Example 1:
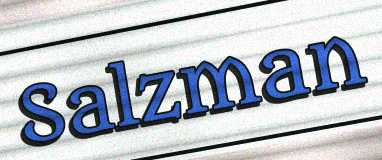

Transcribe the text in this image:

Salzman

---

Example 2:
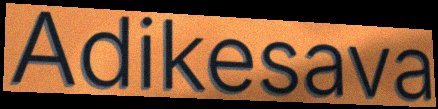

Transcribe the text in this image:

Adikesava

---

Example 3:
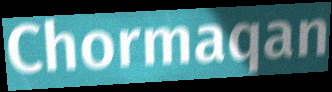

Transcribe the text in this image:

Chormaqan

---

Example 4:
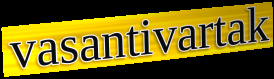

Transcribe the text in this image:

vasantivartak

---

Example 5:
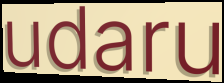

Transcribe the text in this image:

udaru